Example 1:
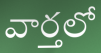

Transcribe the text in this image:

వార్తలో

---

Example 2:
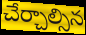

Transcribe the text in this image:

చేర్చాల్సిన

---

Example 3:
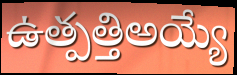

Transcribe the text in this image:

ఉత్పత్తిఅయ్యే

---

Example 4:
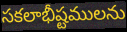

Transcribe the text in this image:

సకలాభీష్టములను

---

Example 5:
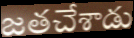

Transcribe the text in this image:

జతచేశాడు